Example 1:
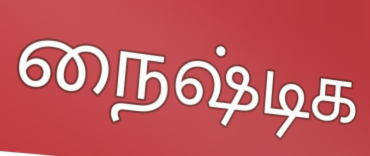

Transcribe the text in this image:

நைஷ்டிக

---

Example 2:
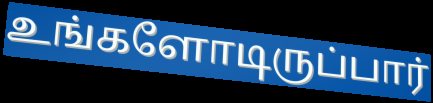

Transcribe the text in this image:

உங்களோடிருப்பார்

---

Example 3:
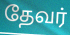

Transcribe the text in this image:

தேவர்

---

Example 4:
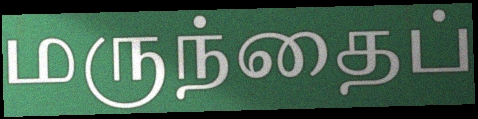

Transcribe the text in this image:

மருந்தைப்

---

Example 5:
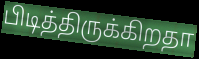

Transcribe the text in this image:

பிடித்திருக்கிறதா